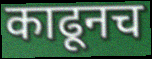
काढूनच